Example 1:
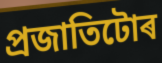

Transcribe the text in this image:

প্ৰজাতিটোৰ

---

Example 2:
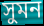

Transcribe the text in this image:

সুমন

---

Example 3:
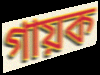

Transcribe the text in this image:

গায়ক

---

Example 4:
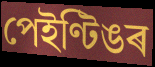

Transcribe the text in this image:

পেইণ্টিঙৰ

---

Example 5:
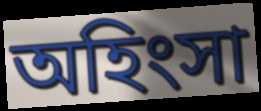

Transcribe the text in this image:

অহিংসা